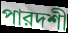
পারদশী